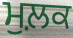
ਮੁਲ਼ਕ